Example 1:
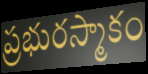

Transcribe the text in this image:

ప్రభురస్మాకం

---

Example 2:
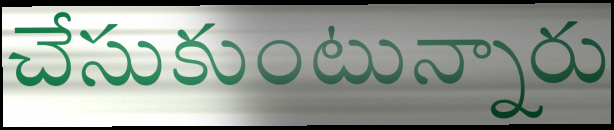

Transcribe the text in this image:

చేసుకుంటున్నారు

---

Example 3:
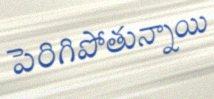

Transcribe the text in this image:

పెరిగిపోతున్నాయి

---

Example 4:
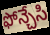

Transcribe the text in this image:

ఫోన్చేసి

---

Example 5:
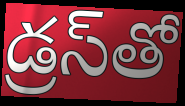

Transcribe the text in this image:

డ్రస్‌తో